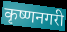
कृष्णनगरी